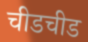
चीडचीड